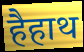
हैहाथ